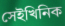
সেইখিনিক